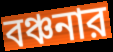
বঞ্চনার